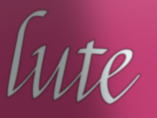
lute